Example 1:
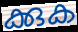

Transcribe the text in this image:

ക്കുക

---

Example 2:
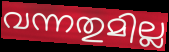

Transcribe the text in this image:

വന്നതുമില്ല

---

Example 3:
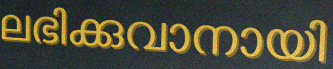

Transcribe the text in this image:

ലഭിക്കുവാനായി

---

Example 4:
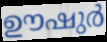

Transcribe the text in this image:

ഊഷുർ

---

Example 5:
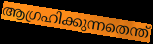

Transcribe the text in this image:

ആഗ്രഹിക്കുന്നതെന്ത്